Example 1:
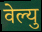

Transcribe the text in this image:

वेल्यु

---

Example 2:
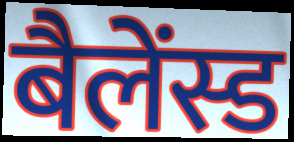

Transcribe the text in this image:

बैलेंस्ड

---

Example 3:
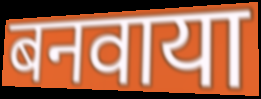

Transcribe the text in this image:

बनवाया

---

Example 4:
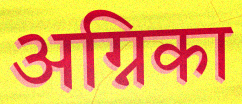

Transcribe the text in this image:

अग्निका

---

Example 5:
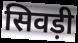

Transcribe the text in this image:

सिवड़ी